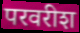
परवरीश